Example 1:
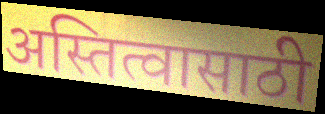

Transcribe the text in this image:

अस्तित्वासाठी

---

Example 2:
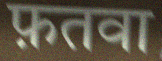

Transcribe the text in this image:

फ़तवा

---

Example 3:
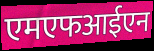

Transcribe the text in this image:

एमएफआईएन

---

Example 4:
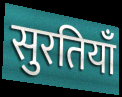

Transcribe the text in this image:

सुरतियाँ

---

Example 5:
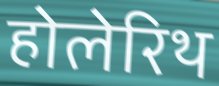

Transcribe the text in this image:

होलेरिथ